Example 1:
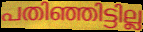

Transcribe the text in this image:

പതിഞ്ഞിട്ടില്ല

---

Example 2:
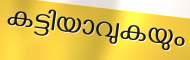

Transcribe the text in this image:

കട്ടിയാവുകയും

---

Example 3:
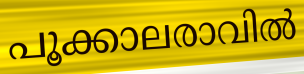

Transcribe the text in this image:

പൂക്കാലരാവിൽ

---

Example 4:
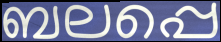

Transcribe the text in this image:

ബലപ്പെ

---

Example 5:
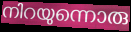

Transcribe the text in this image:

നിറയുന്നൊരു